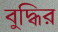
বুদ্ধির